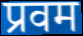
प्रवम